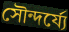
সৌন্দর্য্যে